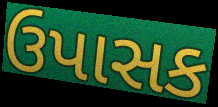
ઉપાસક